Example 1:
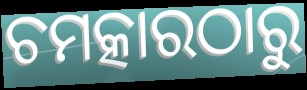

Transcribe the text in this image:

ଚମତ୍କାରଠାରୁ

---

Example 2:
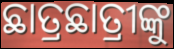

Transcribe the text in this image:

ଛାତ୍ରଛାତ୍ରୀଙ୍କୁ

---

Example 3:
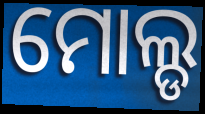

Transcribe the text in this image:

ମୋଲ୍ଡ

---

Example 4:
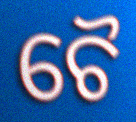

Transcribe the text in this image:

ଚୈ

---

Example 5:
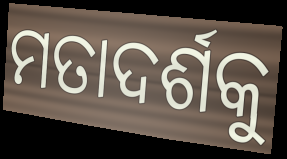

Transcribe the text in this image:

ମତାଦର୍ଶକୁ